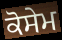
ਕੋਸੇਮ